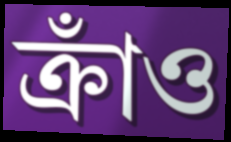
ক্রাঁও